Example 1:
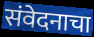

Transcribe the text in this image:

संवेदनाचा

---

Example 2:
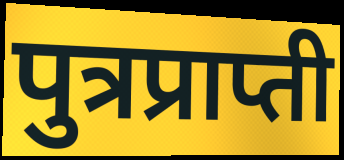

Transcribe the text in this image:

पुत्रप्राप्ती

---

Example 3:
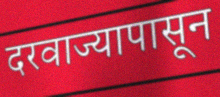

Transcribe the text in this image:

दरवाज्यापासून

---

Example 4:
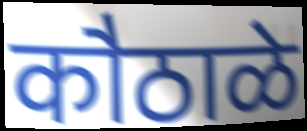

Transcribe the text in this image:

कौठाळे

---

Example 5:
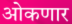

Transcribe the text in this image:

ओकणार